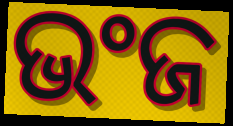
ଭଂଜ